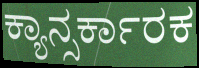
ಕ್ಯಾನ್ಸರ್ಕಾರಕ